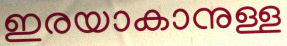
ഇരയാകാനുള്ള